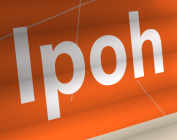
Ipoh